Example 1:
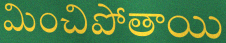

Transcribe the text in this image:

మించిపోతాయి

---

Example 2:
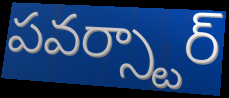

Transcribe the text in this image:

పవర్స్టార్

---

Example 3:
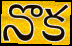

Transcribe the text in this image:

నొక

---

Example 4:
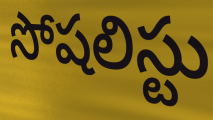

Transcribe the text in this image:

సోషలిస్టు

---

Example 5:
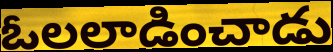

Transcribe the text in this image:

ఓలలాడించాడు